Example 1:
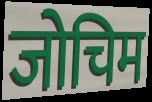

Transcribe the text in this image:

जोचिम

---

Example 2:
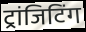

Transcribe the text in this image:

ट्रांजिटिंग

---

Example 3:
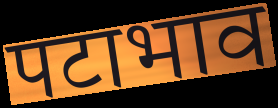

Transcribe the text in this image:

पटाभाव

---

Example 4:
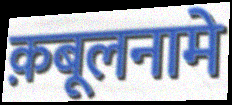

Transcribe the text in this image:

क़बूलनामे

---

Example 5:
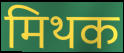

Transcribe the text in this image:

मिथक